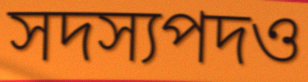
সদস্যপদও